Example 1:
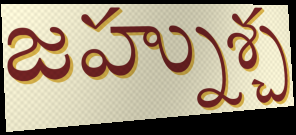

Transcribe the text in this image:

జహ్నుశ్చ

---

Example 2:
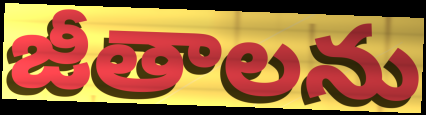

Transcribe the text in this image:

జీతాలను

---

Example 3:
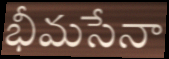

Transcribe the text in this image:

భీమసేనా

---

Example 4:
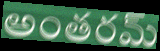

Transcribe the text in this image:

అంతరమ్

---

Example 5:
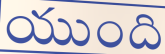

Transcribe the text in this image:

యుంది